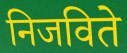
निजविते